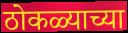
ठोकळ्याच्या